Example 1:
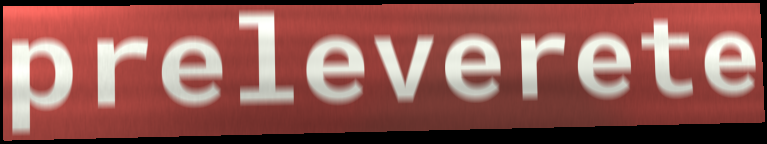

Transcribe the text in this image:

preleverete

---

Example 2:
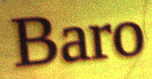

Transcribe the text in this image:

Baro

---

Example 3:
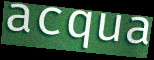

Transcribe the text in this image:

acqua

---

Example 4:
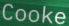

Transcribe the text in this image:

Cooke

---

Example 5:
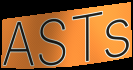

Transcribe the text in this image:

ASTs